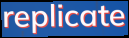
replicate